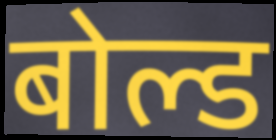
बोल्ड